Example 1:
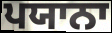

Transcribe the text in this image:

ਪਯਾਨਾ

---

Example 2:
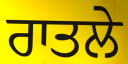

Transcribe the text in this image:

ਰਾਤਲੇ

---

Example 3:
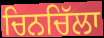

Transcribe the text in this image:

ਚਿਨਚਿੱਲਾ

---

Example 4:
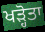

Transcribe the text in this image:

ਖੜ੍ਹੋਤਾ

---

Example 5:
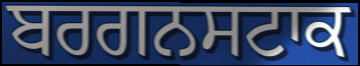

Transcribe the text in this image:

ਬਰਗਨਸਟਾਕ